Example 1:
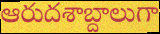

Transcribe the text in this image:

ఆరుదశాబ్దాలుగా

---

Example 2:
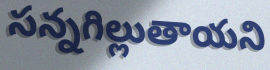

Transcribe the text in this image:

సన్నగిల్లుతాయని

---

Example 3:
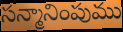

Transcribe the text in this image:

సన్మానింపుము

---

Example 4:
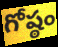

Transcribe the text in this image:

గోష్ఠం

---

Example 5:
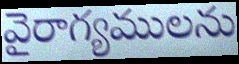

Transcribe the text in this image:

వైరాగ్యములను